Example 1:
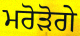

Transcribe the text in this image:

ਮਰੋੜੋਗੇ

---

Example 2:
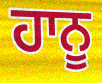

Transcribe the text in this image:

ਹਾਨੂ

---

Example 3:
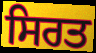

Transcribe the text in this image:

ਸਿਰਤ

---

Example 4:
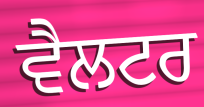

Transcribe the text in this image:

ਵੈਲਟਰ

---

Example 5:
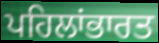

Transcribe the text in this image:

ਪਹਿਲਾਂਭਾਰਤ